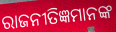
ରାଜନୀତିଜ୍ଞମାନଙ୍କ